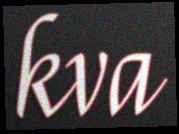
kva